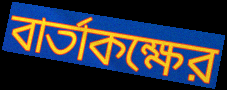
বার্তাকক্ষের